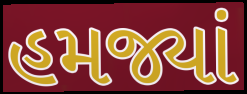
હમજ્યાં